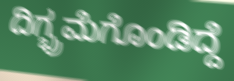
ದಿಗ್ಭ್ರಮೆಗೊಂಡಿದ್ದೆ